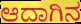
ಆದಾಗಿನ